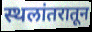
स्थलांतरातून